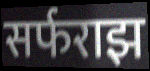
सर्फराझ